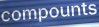
compounts